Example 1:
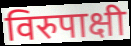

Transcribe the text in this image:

विरुपाक्षी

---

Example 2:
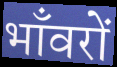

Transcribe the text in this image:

भाँवरों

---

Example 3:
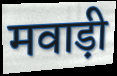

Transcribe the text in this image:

मवाड़ी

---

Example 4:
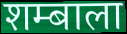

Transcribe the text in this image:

शम्बाला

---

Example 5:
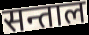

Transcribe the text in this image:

सन्ताल